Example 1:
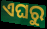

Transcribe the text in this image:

ଏଘରୁ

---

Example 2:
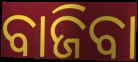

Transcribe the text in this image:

ବାଜିବା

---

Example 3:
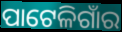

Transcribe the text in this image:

ପାଟେଳିଗାଁର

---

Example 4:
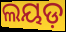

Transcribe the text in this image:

ଲୟଡ଼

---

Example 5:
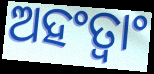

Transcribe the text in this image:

ଅହଂତ୍ୱାଂ